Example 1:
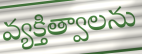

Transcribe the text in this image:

వ్యక్తిత్వాలను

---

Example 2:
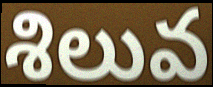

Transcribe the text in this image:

శిలువ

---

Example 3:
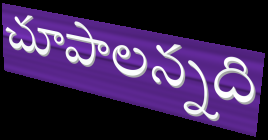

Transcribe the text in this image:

చూపాలన్నది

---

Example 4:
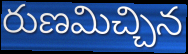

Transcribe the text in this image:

రుణమిచ్చిన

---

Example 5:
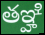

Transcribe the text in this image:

తఞ్హి